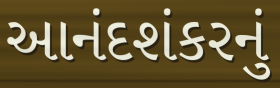
આનંદશંકરનું